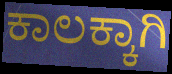
ಕಾಲಕ್ಕಾಗಿ